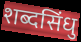
शब्दसिंधु